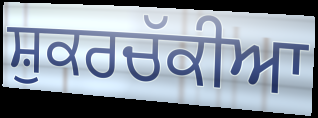
ਸ਼ੁਕਰਚੱਕੀਆ